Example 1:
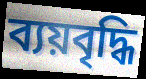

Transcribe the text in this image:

ব্যয়বৃদ্ধি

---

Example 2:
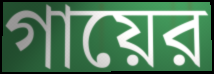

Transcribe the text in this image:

গায়ের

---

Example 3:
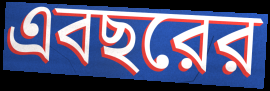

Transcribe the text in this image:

এবছরের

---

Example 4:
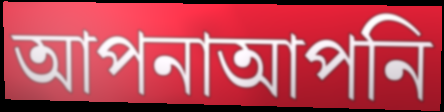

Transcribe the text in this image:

আপনাআপনি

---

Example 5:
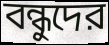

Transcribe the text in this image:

বন্ধুদের